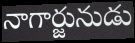
నాగార్జునుడు